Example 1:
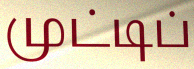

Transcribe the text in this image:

முட்டிப்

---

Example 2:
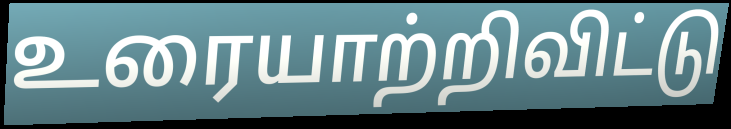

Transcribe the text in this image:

உரையாற்றிவிட்டு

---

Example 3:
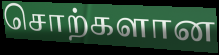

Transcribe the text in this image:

சொற்களான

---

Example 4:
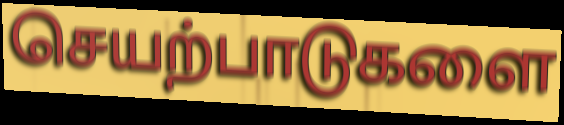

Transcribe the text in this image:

செயற்பாடுகளை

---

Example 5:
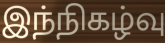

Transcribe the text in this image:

இந்நிகழ்வு